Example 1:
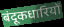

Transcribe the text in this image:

बंदूकधारियों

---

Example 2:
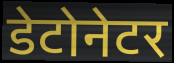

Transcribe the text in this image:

डेटोनेटर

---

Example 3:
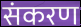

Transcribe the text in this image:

संकरण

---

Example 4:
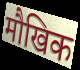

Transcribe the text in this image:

मौखिक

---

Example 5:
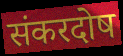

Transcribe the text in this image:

संकरदोष